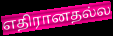
எதிரானதல்ல